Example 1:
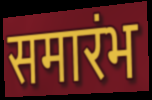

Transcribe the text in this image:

समारंभ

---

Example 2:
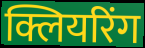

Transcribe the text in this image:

क्लियरिंग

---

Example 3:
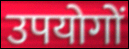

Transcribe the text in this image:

उपयोगों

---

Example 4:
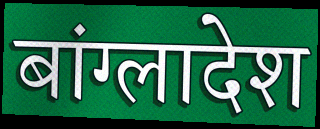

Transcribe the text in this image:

बांग्लादेश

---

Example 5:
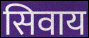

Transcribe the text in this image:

सिवाय